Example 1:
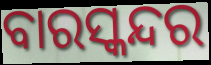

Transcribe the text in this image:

ବାରସ୍କନ୍ଦର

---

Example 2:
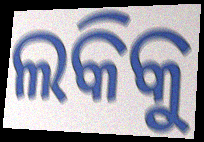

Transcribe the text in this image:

ଲକିକୁ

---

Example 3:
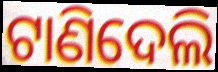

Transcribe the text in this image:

ଟାଣିଦେଲି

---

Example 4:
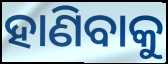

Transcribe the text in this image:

ହାଣିବାକୁ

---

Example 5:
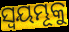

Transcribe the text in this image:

ସ୍ଵୟମ୍ଭୂକୁ